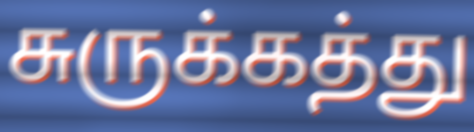
சுருக்கத்து